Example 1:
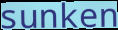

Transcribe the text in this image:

sunken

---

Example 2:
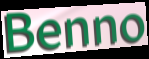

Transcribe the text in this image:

Benno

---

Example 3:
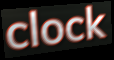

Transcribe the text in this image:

clock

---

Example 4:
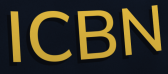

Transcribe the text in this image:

ICBN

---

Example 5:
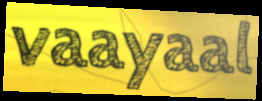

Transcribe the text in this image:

vaayaal